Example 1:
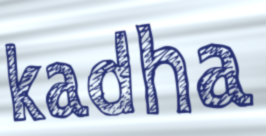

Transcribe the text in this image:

kadha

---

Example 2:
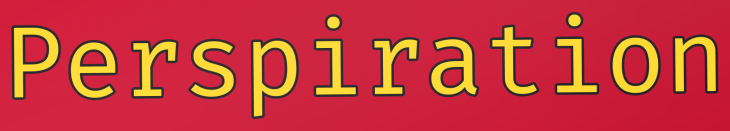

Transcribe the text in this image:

Perspiration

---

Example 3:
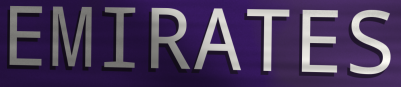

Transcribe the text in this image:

EMIRATES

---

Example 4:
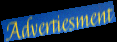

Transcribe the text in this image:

Advertiesment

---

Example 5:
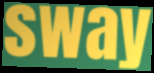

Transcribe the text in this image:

sway